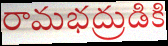
రామభద్రుడికి